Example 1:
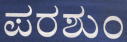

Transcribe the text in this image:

ಪರಶುಂ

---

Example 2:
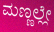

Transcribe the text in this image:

ಮಣ್ಣಲ್ಲೇ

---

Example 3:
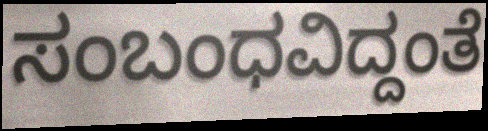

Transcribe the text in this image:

ಸಂಬಂಧವಿದ್ದಂತೆ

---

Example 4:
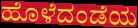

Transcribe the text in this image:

ಹೊಳೆದಂಡೆಯ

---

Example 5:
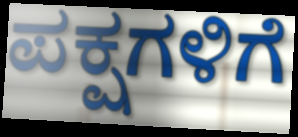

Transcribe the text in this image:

ಪಕ್ಷಗಳಿಗೆ